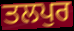
ਤਲਪੁਰ